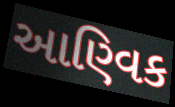
આણ્વિક